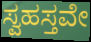
ಸ್ವಹಸ್ತವೇ